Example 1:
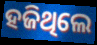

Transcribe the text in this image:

ହଜିଥିଲେ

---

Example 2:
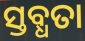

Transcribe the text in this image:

ସ୍ତବ୍ଧତା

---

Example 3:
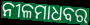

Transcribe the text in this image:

ନୀଳମାଧବର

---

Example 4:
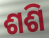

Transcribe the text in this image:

ଶଶି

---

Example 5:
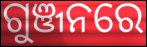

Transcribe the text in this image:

ଗୁଞ୍ଜନରେ